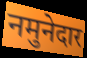
नमुनेदार